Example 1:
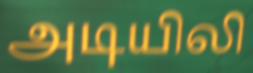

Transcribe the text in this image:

அடியிலி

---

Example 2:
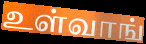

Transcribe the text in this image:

உள்வாங்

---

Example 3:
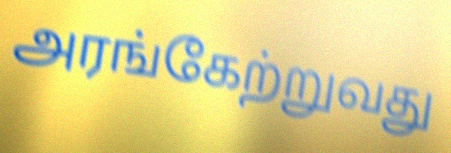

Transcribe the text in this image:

அரங்கேற்றுவது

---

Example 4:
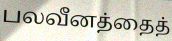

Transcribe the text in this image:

பலவீனத்தைத்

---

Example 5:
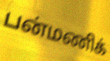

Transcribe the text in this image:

பன்மணிக்